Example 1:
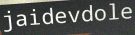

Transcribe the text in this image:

jaidevdole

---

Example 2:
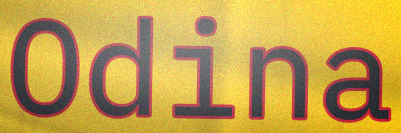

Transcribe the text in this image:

Odina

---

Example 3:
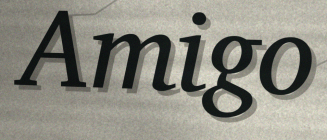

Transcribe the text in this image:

Amigo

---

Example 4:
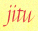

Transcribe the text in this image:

jitu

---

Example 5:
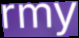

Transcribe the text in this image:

rmy